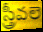
స్త్రీవలె